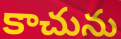
కాచును